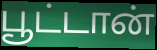
பூட்டான்